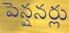
పెన్షనర్లు